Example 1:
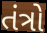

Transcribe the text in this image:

તંત્રો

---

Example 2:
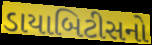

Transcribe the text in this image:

ડાયાબિટીસનો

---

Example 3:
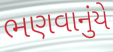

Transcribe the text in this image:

ભણવાનુંયે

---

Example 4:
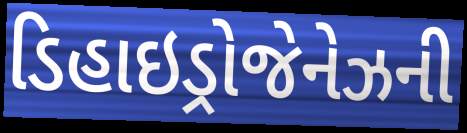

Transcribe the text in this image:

ડિહાઇડ્રોજેનેઝની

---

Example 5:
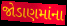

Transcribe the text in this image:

જોડાણમાંના